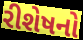
રીશેષનો